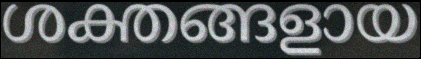
ശക്തങ്ങളായ